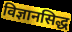
विज्ञानसिद्ध